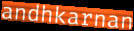
andhkarnan